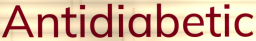
Antidiabetic